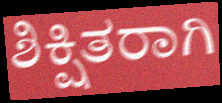
ಶಿಕ್ಷಿತರಾಗಿ